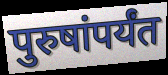
पुरुषांपर्यंत